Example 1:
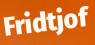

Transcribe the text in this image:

Fridtjof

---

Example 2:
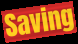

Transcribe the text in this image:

Saving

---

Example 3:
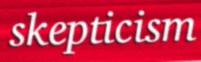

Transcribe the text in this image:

skepticism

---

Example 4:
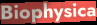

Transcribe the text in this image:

Biophysica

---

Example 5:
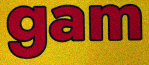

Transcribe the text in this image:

gam